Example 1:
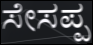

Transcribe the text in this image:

ಸೇಸಪ್ಪ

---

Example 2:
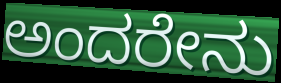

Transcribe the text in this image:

ಅಂದರೇನು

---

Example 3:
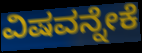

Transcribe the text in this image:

ವಿಷವನ್ನೇಕೆ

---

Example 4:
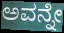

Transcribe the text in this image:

ಅವನ್ನೇ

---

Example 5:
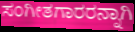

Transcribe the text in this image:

ಸಂಗೀತಗಾರರನ್ನಾಗಿ